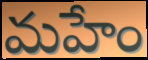
మహేం